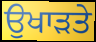
ਉਖਾੜਤੇ